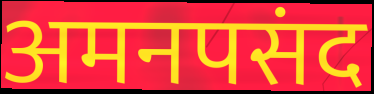
अमनपसंद